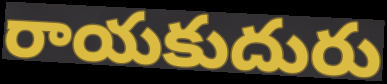
రాయకుదురు